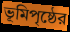
ভূমিপৃষ্ঠের